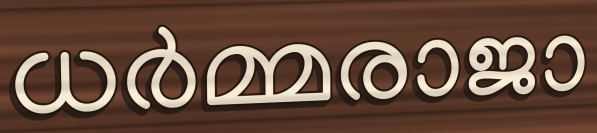
ധർമ്മരാജാ